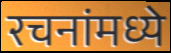
रचनांमध्ये